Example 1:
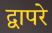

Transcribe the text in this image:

द्वापरे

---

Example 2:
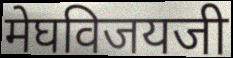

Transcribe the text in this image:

मेघविजयजी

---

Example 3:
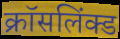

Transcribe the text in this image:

क्रॉसलिंक्ड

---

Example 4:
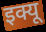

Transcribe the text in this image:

इक्यू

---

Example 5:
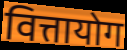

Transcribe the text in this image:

वित्तायोग